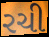
રચી